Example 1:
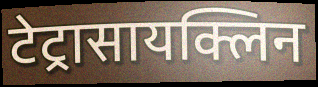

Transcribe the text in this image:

टेट्रासायक्लिन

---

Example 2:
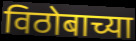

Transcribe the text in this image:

विठोबाच्या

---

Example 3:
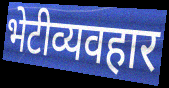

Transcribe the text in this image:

भेटीव्यवहार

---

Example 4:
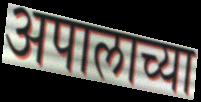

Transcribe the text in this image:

अपालाच्या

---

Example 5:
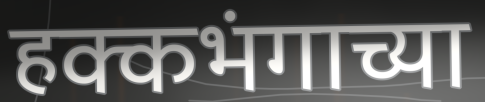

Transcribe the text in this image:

हक्कभंगाच्या